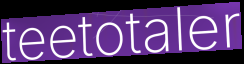
teetotaler